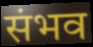
संभव